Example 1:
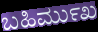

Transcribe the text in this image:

ಬಹಿರ್ಮುಖ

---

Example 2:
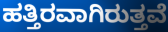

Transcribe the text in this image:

ಹತ್ತಿರವಾಗಿರುತ್ತವೆ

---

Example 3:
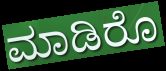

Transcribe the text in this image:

ಮಾಡಿರೊ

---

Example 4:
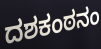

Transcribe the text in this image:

ದಶಕಂಠನಂ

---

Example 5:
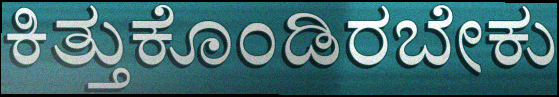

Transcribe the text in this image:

ಕಿತ್ತುಕೊಂಡಿರಬೇಕು